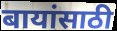
बायांसाठी